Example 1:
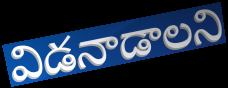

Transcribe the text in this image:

విడనాడాలని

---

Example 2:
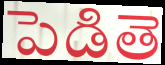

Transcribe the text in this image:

పెడితె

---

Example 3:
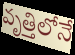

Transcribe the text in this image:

వృత్తిలోనే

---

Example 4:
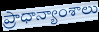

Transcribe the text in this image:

ప్రాధాన్యాంశాలు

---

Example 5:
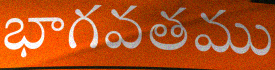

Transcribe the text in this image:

భాగవతము